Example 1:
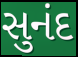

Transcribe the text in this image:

સુનંદ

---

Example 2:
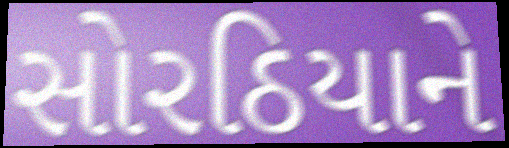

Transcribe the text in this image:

સોરઠિયાને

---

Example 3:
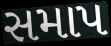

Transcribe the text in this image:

સમાપ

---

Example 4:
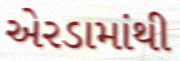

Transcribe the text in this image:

એરડામાંથી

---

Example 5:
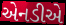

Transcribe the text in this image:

એનડીએ